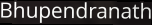
Bhupendranath